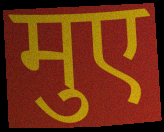
मुए